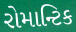
રોમાન્ટિક